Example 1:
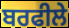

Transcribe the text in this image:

ਬਰਫੀਲੇ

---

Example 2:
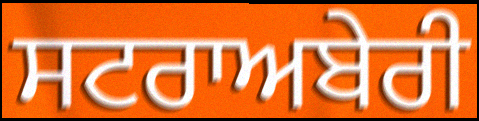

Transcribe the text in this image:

ਸਟਰਾਅਬੇਰੀ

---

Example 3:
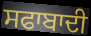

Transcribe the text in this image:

ਸਫਾਬਾਦੀ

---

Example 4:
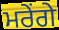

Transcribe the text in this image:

ਮਰੇਂਗੇ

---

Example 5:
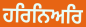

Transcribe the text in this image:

ਹਰਿਨਿਅਰਿ